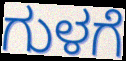
ಗುಳಗೆ